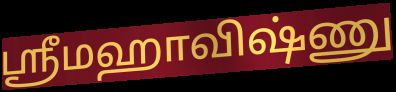
ஸ்ரீமஹாவிஷ்ணு